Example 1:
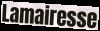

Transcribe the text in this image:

Lamairesse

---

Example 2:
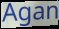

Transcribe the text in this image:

Agan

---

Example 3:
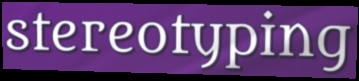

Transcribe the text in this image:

stereotyping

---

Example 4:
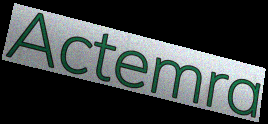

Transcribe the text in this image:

Actemra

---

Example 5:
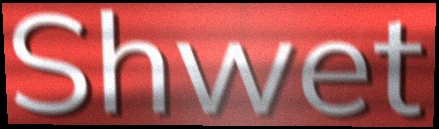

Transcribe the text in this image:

Shwet